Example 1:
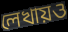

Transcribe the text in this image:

লেখায়ও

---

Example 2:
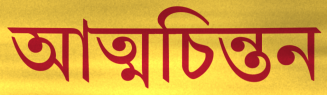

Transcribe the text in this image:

আত্মচিন্তন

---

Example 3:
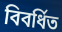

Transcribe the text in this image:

বিবর্ধিত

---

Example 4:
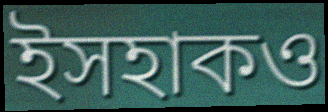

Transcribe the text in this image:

ইসহাকও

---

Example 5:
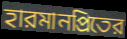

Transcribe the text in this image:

হারমানপ্রিতের